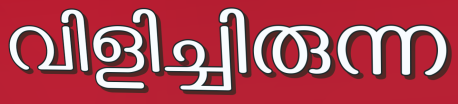
വിളിച്ചിരുന്ന